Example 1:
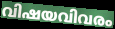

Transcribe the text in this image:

വിഷയവിവരം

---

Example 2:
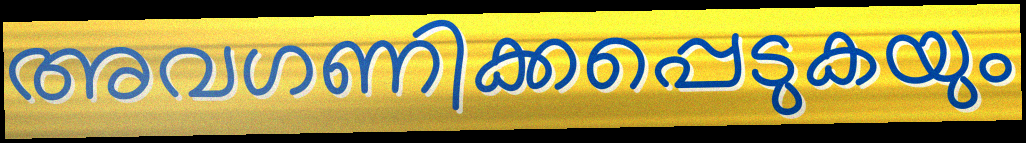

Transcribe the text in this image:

അവഗണിക്കപ്പെടുകയും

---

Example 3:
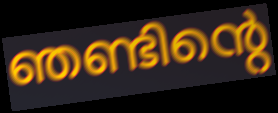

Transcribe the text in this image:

ഞണ്ടിന്റെ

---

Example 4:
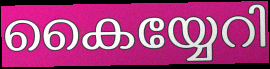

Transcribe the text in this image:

കൈയ്യേറി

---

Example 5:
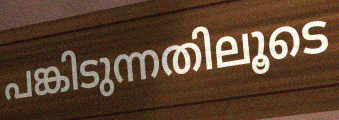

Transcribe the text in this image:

പങ്കിടുന്നതിലൂടെ